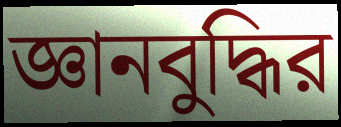
জ্ঞানবুদ্ধির